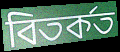
বিতৰ্কত